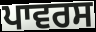
ਪਾਵਰਸ